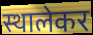
स्थालेकर